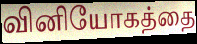
வினியோகத்தை